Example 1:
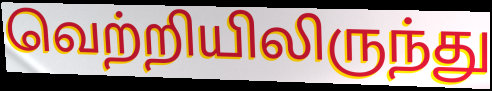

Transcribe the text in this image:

வெற்றியிலிருந்து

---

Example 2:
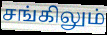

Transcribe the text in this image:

சங்கிலும்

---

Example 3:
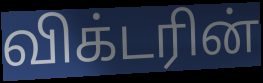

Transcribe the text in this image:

விக்டரின்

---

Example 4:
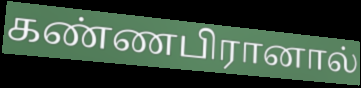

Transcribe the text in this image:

கண்ணபிரானால்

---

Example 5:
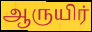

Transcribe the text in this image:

ஆருயிர்